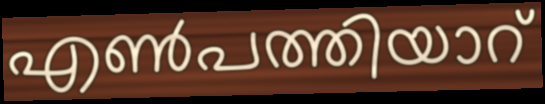
എൺപത്തിയാറ്